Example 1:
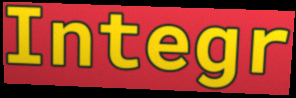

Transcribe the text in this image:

Integr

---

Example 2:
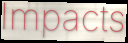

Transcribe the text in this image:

Impacts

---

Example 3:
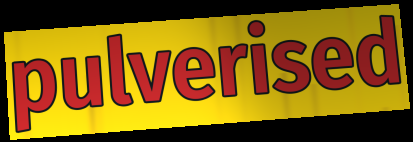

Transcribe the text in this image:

pulverised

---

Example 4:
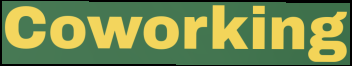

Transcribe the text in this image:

Coworking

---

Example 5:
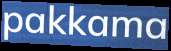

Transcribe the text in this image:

pakkama